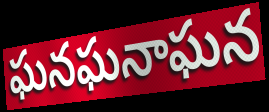
ఘనఘనాఘన